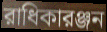
রাধিকারঞ্জন